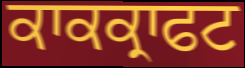
ਕਾਕਕ੍ਰਾਫਟ